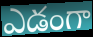
ఎడంగా